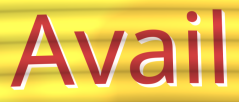
Avail